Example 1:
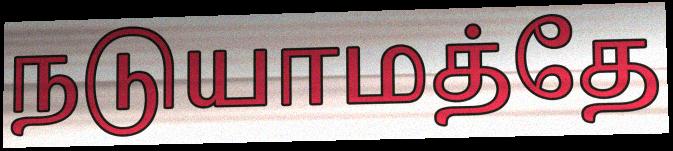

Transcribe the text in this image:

நடுயாமத்தே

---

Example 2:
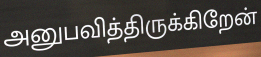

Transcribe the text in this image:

அனுபவித்திருக்கிறேன்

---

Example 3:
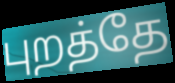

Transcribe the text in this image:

புறத்தே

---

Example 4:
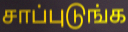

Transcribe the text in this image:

சாப்புடுங்க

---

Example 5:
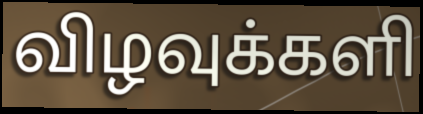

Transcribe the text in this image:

விழவுக்களி